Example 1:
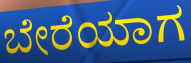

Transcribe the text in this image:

ಬೇರೆಯಾಗ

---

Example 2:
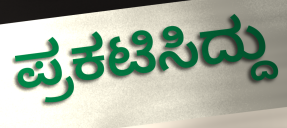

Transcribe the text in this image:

ಪ್ರಕಟಿಸಿದ್ದು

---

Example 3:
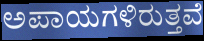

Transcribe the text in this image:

ಅಪಾಯಗಳಿರುತ್ತವೆ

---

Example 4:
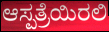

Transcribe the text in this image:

ಆಸ್ಪತ್ರೆಯಿರಲಿ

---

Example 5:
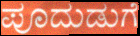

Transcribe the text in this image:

ಪೂದುಡುಗೆ